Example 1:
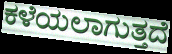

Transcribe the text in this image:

ಕಳೆಯಲಾಗುತ್ತದೆ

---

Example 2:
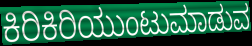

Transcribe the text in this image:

ಕಿರಿಕಿರಿಯುಂಟುಮಾಡುವ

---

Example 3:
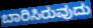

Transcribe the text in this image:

ಬಾರಿಸಿರುವುದು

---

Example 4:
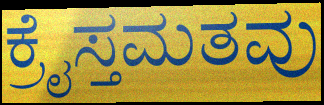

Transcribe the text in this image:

ಕ್ರೈಸ್ತಮತವು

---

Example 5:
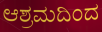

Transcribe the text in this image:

ಆಶ್ರಮದಿಂದ